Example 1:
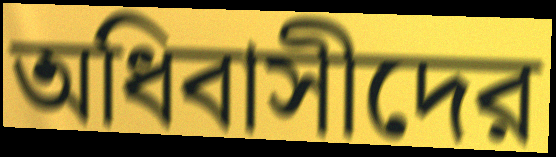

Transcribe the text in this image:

অধিবাসীদের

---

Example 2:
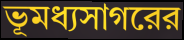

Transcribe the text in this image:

ভূমধ্যসাগরের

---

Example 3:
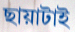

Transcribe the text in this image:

ছায়াটাই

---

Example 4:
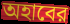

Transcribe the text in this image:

অহাবের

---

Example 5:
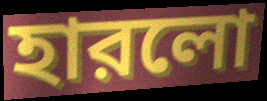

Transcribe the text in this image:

হারলো